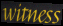
witness